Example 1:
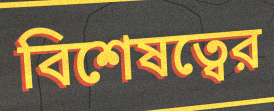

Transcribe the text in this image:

বিশেষত্বের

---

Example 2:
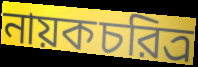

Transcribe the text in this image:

নায়কচরিত্র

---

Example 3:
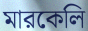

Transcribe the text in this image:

মারকেলি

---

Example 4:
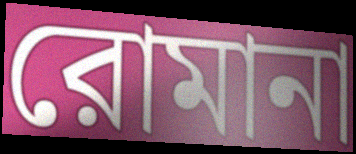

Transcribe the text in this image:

রোমানা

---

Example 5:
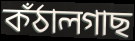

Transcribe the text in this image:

কঁঠালগাছ